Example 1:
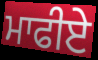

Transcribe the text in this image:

ਮਾਫੀਏ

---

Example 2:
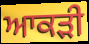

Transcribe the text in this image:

ਆਕੜੀ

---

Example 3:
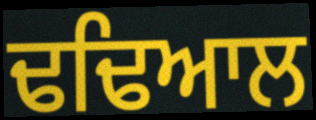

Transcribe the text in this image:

ਢਢਿਆਲ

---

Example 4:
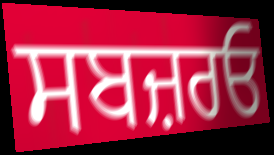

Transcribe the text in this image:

ਸਬਜ਼ਰਓ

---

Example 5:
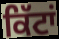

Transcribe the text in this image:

ਕਿੱਟਾਂ